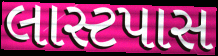
લાસ્ટપાસ